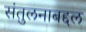
संतुलनाबद्दल